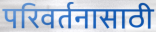
परिवर्तनासाठी